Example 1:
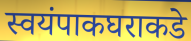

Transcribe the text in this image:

स्वयंपाकघराकडे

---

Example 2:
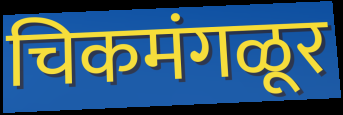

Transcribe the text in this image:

चिकमंगळूर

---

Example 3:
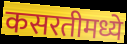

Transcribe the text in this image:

कसरतीमध्ये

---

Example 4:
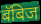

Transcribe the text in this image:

बॅबिज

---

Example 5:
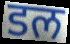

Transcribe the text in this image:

डल